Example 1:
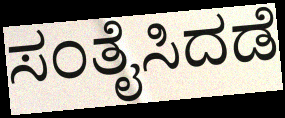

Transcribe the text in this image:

ಸಂತೈಸಿದಡೆ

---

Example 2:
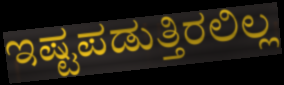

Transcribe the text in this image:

ಇಷ್ಟಪಡುತ್ತಿರಲಿಲ್ಲ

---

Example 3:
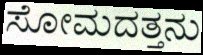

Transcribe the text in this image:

ಸೋಮದತ್ತನು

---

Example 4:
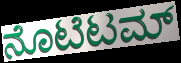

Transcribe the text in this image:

ನೊಟೆಟಮ್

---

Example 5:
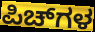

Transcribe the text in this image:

ಪಿಚ್‌ಗಳ